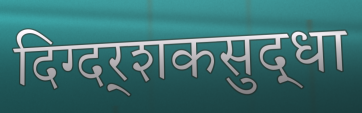
दिग्दर्शकसुद्धा